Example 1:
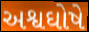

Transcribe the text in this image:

અશ્વઘોષે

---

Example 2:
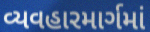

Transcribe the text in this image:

વ્યવહારમાર્ગમાં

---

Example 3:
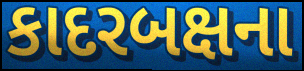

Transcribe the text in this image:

કાદરબક્ષના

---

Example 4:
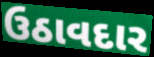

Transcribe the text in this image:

ઉઠાવદાર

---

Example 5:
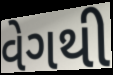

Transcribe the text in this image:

વેગથી